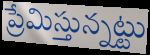
ప్రేమిస్తున్నట్టు